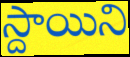
స్దాయిని